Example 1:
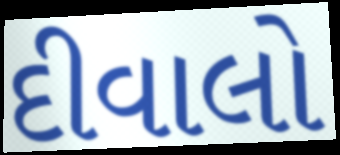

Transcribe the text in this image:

દીવાલો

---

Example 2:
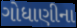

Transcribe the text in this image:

ગોધાણીના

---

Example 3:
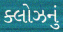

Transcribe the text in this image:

ક્લોઝનું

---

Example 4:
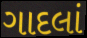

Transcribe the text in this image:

ગાદલાં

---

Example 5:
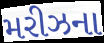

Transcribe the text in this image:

મરીઝના